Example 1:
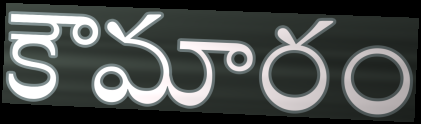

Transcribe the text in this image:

కౌమారం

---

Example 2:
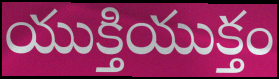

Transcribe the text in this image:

యుక్తియుక్తం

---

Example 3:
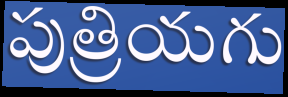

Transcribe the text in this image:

పుత్రియగు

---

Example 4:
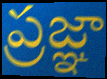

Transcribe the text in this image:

ప్రజ్ఞా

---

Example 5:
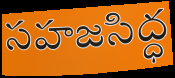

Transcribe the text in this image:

సహజసిద్ధ